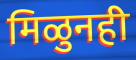
मिळुनही